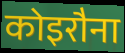
कोइरौना